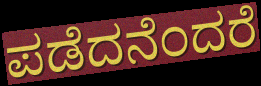
ಪಡೆದನೆಂದರೆ